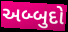
અબ્બુદો